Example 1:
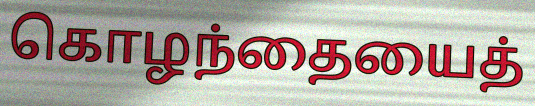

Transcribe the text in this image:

கொழந்தையைத்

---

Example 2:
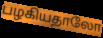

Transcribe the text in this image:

பழகியதாலோ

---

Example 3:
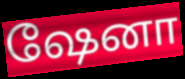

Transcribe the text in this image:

ஷேனா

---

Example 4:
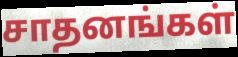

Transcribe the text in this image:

சாதனங்கள்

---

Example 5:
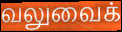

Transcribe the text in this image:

வலுவைக்